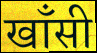
खाँसी